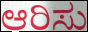
ಆರಿಸು